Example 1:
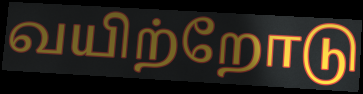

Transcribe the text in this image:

வயிற்றோடு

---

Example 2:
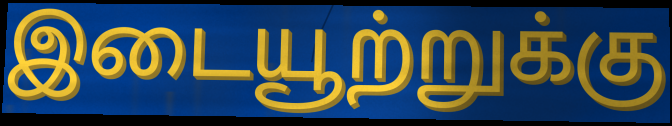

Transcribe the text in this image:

இடையூற்றுக்கு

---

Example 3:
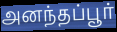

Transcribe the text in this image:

அனந்தப்பூர்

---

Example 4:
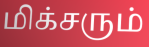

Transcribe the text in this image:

மிக்சரும்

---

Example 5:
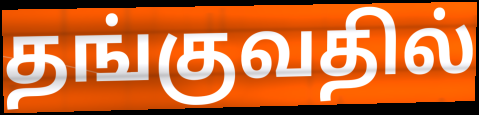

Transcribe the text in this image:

தங்குவதில்